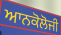
ਆਨਕੋਲੋਜੀ